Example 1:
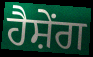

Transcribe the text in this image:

ਹੈਸ਼ੇਂਗ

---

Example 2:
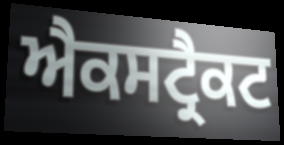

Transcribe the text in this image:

ਐਕਸਟ੍ਰੈਕਟ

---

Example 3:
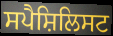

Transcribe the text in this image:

ਸਪੈਸ਼ਿਲਿਸਟ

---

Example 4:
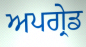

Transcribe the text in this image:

ਅਪਗ੍ਰੇਡ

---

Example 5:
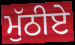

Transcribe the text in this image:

ਮੁੱਠੀਏ